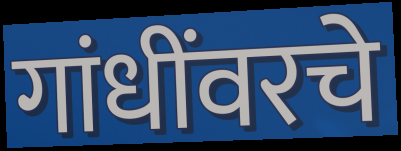
गांधींवरचे